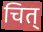
चित्